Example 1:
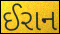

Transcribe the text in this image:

ઈરાન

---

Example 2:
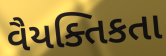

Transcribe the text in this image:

વૈયક્તિકતા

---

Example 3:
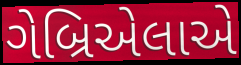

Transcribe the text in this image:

ગેબ્રિએલાએ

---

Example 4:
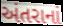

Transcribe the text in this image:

અંતરાનાં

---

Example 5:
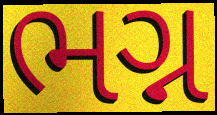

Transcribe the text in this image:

ભગ્ન